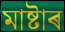
মাষ্টাৰ